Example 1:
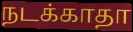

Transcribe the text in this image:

நடக்காதா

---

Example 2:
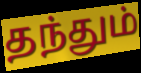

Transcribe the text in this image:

தந்தும்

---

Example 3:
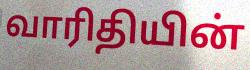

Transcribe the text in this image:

வாரிதியின்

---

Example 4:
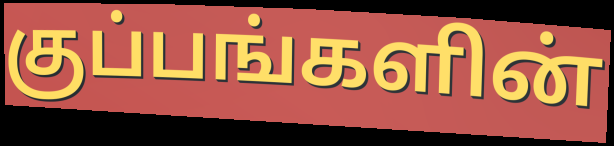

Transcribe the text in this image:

குப்பங்களின்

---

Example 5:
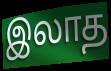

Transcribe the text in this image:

இலாத